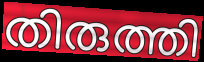
തിരുത്തി